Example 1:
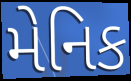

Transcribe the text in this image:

મેનિક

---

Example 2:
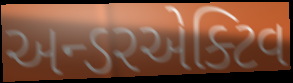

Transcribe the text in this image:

અન્ડરએક્ટિવ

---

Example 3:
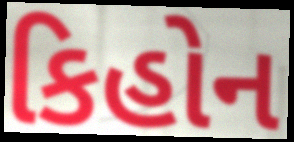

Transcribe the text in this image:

કિહોન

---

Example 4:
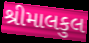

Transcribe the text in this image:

શ્રીમાલકુલ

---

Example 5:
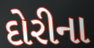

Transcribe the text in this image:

દોરીના